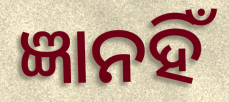
ଜ୍ଞାନହିଁ